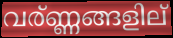
വര്ണ്ണങ്ങളില്